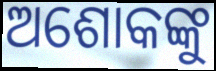
ଅଶୋକଙ୍କୁ